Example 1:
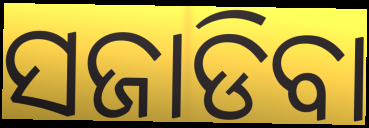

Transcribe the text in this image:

ସଜାଡିବା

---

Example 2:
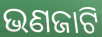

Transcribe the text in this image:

ଭଣଜାଟି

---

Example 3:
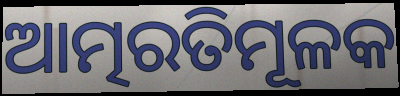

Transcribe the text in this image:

ଆତ୍ମରତିମୂଳକ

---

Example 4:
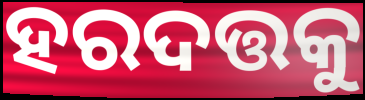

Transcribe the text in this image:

ହରଦତ୍ତକୁ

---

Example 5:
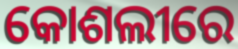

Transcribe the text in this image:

କୋଶଲୀରେ